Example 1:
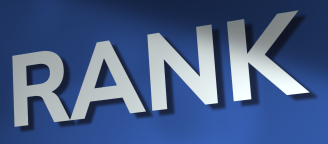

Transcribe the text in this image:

RANK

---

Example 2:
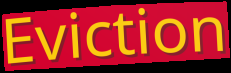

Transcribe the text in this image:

Eviction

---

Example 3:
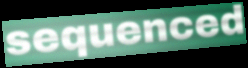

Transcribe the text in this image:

sequenced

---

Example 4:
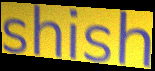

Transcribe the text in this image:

shish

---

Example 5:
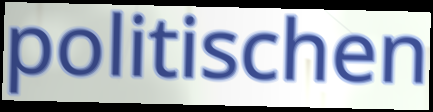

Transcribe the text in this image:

politischen